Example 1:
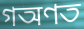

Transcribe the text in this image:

গঅণত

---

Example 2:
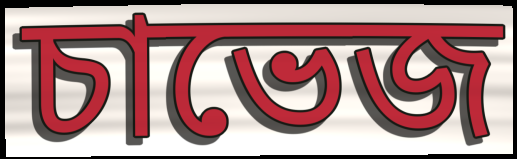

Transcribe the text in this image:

চাভেজ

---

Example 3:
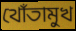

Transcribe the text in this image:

থোঁতামুখ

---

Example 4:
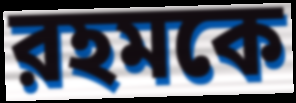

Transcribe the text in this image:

রহমকে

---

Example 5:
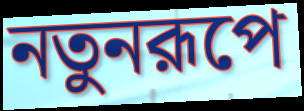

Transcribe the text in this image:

নতুনরূপে